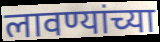
लावण्यांच्या